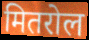
मितरोल